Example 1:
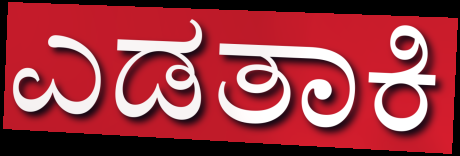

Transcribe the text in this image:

ಎಡತಾಕಿ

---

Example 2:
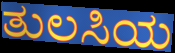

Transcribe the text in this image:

ತುಲಸಿಯ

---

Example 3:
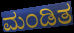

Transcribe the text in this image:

ಮಂಡಿತ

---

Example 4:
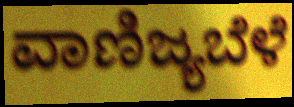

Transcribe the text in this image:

ವಾಣಿಜ್ಯಬೆಳೆ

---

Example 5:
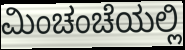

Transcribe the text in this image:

ಮಿಂಚಂಚೆಯಲ್ಲಿ